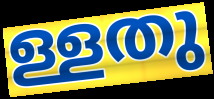
ള്ളതു